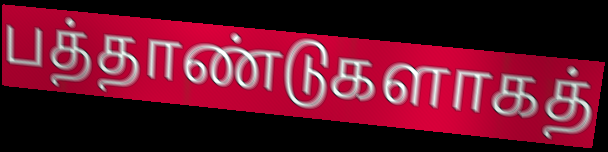
பத்தாண்டுகளாகத்